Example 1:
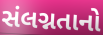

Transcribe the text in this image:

સંલગ્નતાનો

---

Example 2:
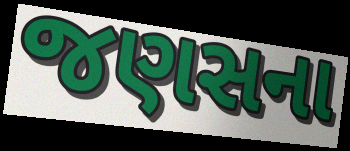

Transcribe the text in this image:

જણસના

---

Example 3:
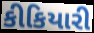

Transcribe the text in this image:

કીકિયારી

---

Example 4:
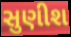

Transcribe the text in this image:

સુણીશ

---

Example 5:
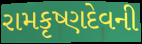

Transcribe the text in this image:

રામકૃષ્ણદેવની